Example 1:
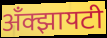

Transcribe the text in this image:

अँक्झायटी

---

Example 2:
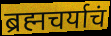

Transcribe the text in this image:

ब्रह्मचर्याचं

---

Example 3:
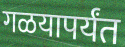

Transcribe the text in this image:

गळयापर्यंत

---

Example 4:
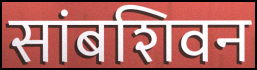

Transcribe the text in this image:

सांबशिवन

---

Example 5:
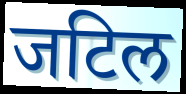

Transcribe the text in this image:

जटिल